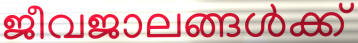
ജീവജാലങ്ങൾക്ക്